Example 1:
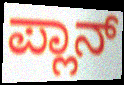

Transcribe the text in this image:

ಪ್ಲಾನ್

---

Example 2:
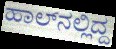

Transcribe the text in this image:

ಹಾಲ್‌ನಲ್ಲಿದ್ದ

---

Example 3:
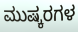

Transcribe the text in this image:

ಮುಷ್ಕರಗಳ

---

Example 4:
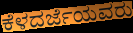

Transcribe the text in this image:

ಕೆಳದರ್ಜೆಯವರು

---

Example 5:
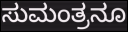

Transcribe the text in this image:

ಸುಮಂತ್ರನೂ